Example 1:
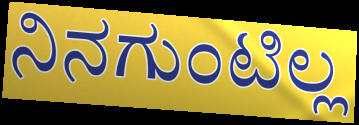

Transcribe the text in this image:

ನಿನಗುಂಟಿಲ್ಲ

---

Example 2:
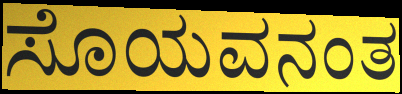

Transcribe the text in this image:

ಸೊಯವನಂತ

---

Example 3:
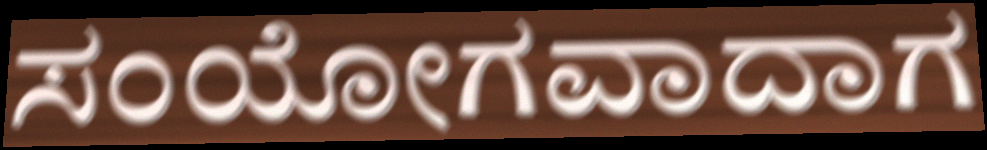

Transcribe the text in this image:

ಸಂಯೋಗವಾದಾಗ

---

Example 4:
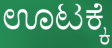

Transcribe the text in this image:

ಊಟಕ್ಕೆ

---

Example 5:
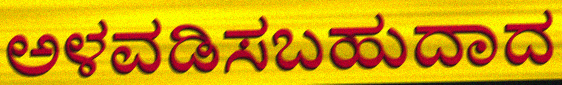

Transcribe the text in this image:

ಅಳವಡಿಸಬಹುದಾದ